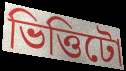
ভিত্তিটো